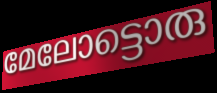
മേലോട്ടൊരു